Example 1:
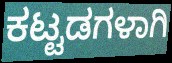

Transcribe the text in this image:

ಕಟ್ಟಡಗಳಾಗಿ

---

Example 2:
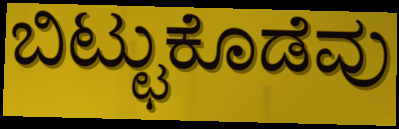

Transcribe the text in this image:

ಬಿಟ್ಟುಕೊಡೆವು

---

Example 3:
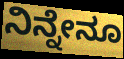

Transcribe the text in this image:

ನಿನ್ನೇನೂ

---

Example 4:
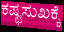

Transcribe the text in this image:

ಕಷ್ಟಸುಖಕ್ಕೆ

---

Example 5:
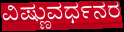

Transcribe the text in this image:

ವಿಷ್ಣುವರ್ಧನರ